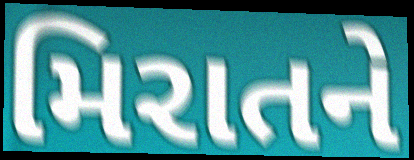
મિરાતને